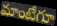
మాంటేగూ